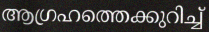
ആഗ്രഹത്തെക്കുറിച്ച്